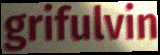
grifulvin